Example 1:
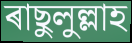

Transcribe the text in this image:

ৰাছুলুল্লাহ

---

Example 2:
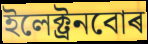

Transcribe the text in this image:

ইলেক্ট্ৰনবোৰ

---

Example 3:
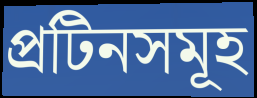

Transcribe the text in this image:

প্ৰটিনসমূহ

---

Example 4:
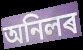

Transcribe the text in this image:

অনিলৰ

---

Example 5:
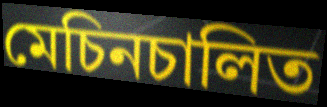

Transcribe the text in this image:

মেচিনচালিত